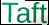
Taft